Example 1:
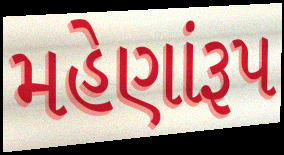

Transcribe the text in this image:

મહેણાંરૂપ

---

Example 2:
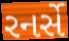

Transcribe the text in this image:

રનર્સે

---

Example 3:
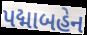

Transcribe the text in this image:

પદ્માબહેન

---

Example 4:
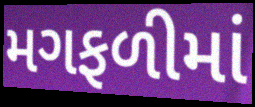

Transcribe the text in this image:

મગફળીમાં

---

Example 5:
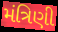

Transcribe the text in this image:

મંત્રિણી